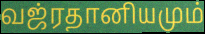
வஜ்ரதானியமும்